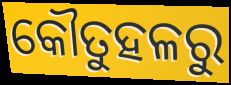
କୌତୁହଳରୁ